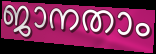
ജാനതാം